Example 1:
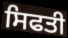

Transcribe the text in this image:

ਸਿਫਤੀ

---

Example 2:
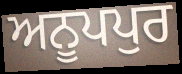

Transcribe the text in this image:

ਅਨੂਪਪੁਰ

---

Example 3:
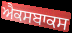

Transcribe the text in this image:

ਐਕਸਬਾਕਸ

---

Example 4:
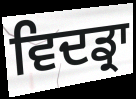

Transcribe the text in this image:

ਵਿਦਡ੍ਰਾ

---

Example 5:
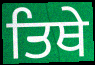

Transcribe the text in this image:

ਤਿਥੇ